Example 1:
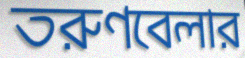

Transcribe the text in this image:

তরুণবেলার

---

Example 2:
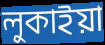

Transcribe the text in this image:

লুকাইয়া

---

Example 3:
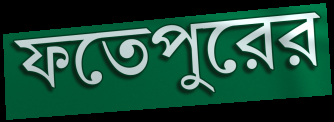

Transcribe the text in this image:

ফতেপুরের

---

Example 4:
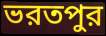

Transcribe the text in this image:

ভরতপুর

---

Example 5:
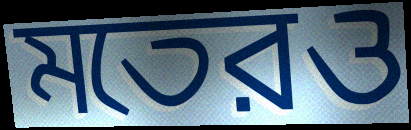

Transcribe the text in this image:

মতেরও